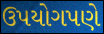
ઉપયોગપણે